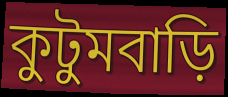
কুটুমবাড়ি